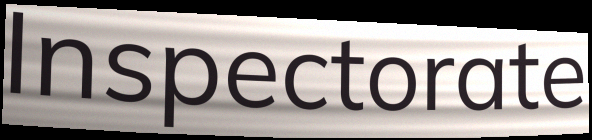
Inspectorate